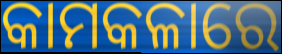
କାମକଳାରେ